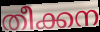
തീക്കന